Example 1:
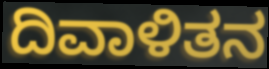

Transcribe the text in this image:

ದಿವಾಳಿತನ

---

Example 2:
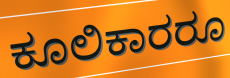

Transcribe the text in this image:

ಕೂಲಿಕಾರರೂ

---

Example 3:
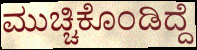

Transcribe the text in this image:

ಮುಚ್ಚಿಕೊಂಡಿದ್ದೆ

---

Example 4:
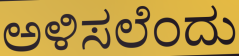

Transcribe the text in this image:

ಅಳಿಸಲೆಂದು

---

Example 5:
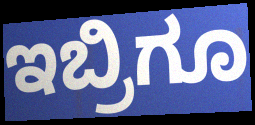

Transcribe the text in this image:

ಇಬ್ರಿಗೂ